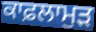
ਕਾਫ਼ਲਾਮੁੜ